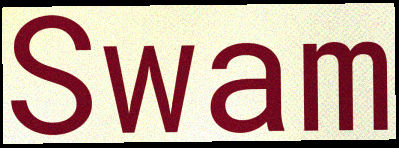
Swam